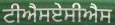
ਟੀਐਸਏਸੀਐਸ